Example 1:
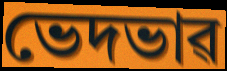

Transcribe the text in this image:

ভেদভাৱ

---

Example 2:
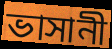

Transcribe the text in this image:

ভাসানী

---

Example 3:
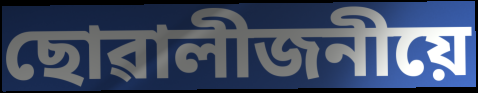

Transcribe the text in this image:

ছোৱালীজনীয়ে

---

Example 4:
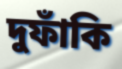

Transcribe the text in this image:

দুফাঁকি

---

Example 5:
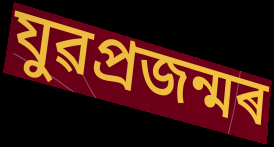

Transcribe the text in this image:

যুৱপ্ৰজন্মৰ